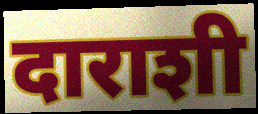
दाराशी